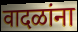
वादळांना